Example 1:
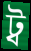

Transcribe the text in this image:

ট্ব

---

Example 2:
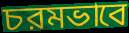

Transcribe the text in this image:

চরমভাবে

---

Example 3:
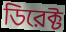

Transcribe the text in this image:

ডিরেক্ট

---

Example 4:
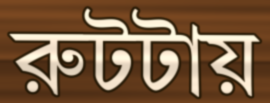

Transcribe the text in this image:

রুটটায়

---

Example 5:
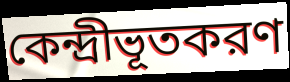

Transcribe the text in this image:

কেন্দ্রীভূতকরণ